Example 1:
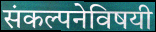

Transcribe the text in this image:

संकल्पनेविषयी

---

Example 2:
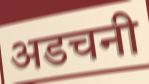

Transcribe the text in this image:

अडचनी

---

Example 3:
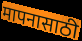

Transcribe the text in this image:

मापनासाठी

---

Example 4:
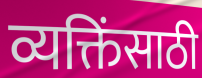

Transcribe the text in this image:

व्यक्तिंसाठी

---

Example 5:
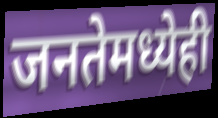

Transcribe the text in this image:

जनतेमध्येही